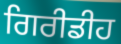
ਗਿਰੀਡੀਹ